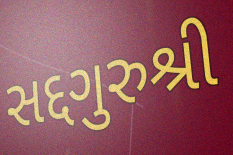
સદ્દગુરુશ્રી